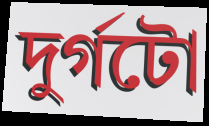
দুৰ্গটো